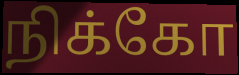
நிக்கோ